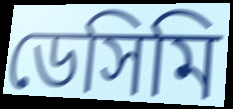
ডেসিমি